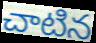
చాటిన